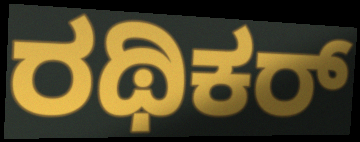
ರಥಿಕರ್